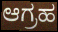
ಆಗ್ರಹ